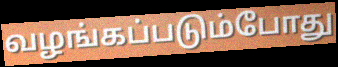
வழங்கப்படும்போது